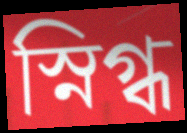
স্নিগ্ধ